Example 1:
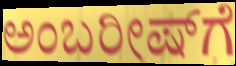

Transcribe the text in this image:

ಅಂಬರೀಷ್‌ಗೆ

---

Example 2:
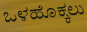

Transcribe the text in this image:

ಒಳಹೊಕ್ಕಲು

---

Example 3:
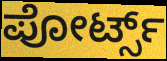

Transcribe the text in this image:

ಪೋರ್ಟ್ಸ್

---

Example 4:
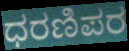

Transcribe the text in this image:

ಧರಣಿಪರ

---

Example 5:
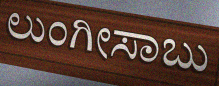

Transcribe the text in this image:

ಲುಂಗೀಸಾಬು